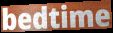
bedtime